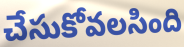
చేసుకోవలసింది